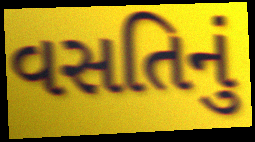
વસતિનું